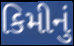
કિમીનું